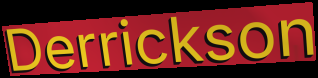
Derrickson